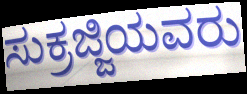
ಸುಕ್ರಜ್ಜಿಯವರು